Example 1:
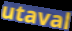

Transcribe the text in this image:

utaval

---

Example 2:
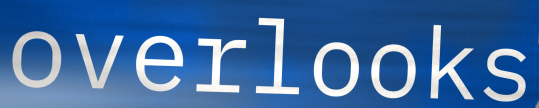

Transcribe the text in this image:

overlooks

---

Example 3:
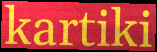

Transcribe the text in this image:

kartiki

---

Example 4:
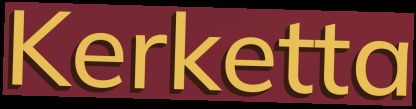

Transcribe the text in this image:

Kerketta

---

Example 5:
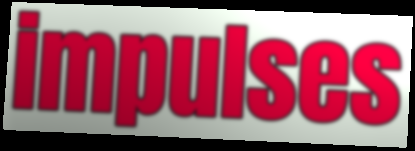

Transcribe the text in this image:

impulses